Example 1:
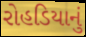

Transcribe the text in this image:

રોહડિયાનું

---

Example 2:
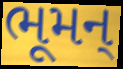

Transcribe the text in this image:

ભૂમન્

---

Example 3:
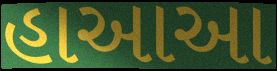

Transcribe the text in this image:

હાઆઆ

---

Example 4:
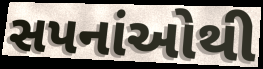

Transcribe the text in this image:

સપનાંઓથી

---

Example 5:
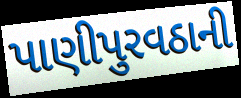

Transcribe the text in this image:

પાણીપુરવઠાની